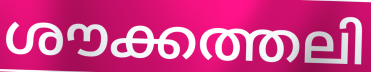
ശൗക്കത്തലി